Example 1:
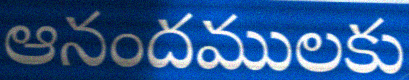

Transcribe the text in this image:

ఆనందములకు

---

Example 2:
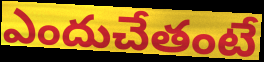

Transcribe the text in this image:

ఎందుచేతంటే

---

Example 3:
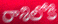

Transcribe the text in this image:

రాశిలోకి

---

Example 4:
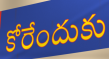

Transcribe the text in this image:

కోరేందుకు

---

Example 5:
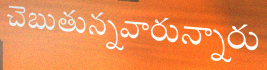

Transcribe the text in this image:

చెబుతున్నవారున్నారు